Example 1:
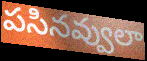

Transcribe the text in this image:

పసినవ్వులా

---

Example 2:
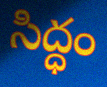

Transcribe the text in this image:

సిద్ధం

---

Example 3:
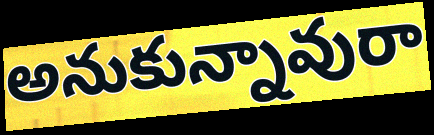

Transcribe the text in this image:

అనుకున్నావురా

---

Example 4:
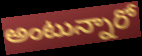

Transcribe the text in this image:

అంటున్నారో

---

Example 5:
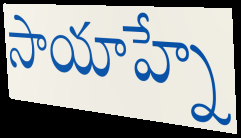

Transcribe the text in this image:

సాయాహ్నే